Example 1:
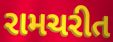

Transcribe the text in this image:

રામચરીત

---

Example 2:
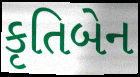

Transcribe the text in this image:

કૃતિબેન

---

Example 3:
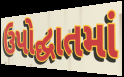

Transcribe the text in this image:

ઉપોદ્ઘાતમાં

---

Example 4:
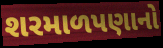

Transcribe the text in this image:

શરમાળપણાનો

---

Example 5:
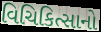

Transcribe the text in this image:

વિચિકિત્સાનો